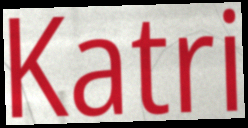
Katri